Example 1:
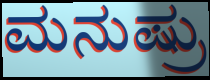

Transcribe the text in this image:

ಮನುಷ್ರು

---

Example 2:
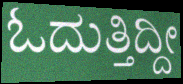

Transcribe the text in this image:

ಓದುತ್ತಿದ್ದೀ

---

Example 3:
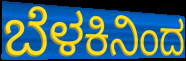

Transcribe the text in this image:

ಬೆಳಕಿನಿಂದ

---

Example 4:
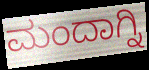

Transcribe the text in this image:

ಮಂದಾಗ್ನಿ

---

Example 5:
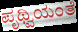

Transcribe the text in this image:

ಪೃಥ್ವಿಯಂತೆ